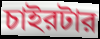
চাইরটার